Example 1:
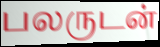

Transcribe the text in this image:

பலருடன்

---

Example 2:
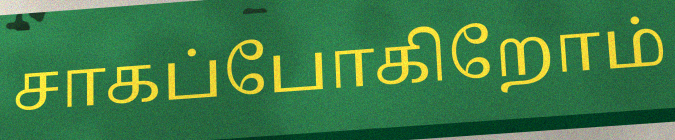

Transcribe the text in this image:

சாகப்போகிறோம்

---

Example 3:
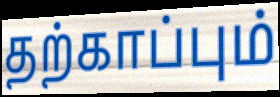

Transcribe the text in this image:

தற்காப்பும்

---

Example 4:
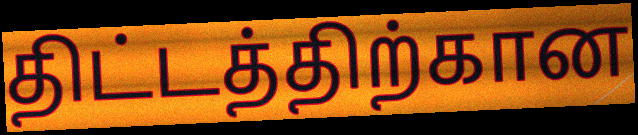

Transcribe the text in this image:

திட்டத்திற்கான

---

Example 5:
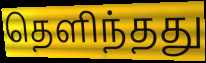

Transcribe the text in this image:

தெளிந்தது